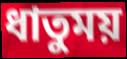
ধাতুময়